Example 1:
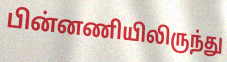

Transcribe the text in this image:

பின்னணியிலிருந்து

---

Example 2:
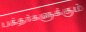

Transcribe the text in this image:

பக்தர்களுக்கும்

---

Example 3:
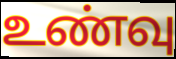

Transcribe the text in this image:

உண்வு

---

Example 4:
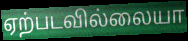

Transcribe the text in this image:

ஏற்படவில்லையா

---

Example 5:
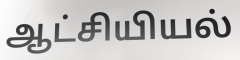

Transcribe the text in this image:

ஆட்சியியல்